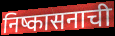
निष्कासनाची